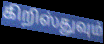
கிறிஸ்துவும்